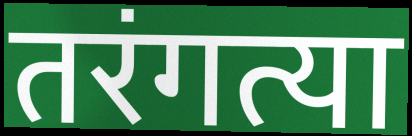
तरंगत्या